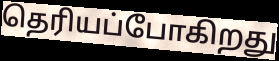
தெரியப்போகிறது